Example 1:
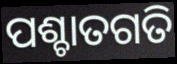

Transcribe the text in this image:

ପଶ୍ଚାତଗତି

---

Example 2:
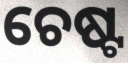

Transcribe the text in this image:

ଚେଷ୍ଟ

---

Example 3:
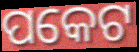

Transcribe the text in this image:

ପକେଟ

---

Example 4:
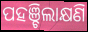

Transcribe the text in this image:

ପହଞ୍ଚିଲାକ୍ଷଣି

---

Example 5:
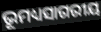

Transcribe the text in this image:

ଭୂମଧ୍ୟସାଗରୀୟ